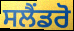
ਸਲੈਂਡਰੋ